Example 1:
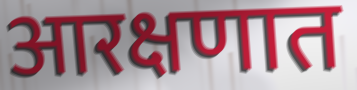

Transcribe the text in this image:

आरक्षणात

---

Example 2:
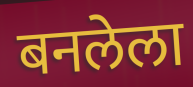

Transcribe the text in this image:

बनलेला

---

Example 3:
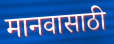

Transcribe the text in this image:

मानवासाठी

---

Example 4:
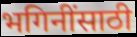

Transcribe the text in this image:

भगिनींसाठी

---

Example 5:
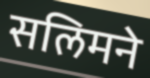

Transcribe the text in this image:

सलिमने